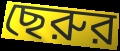
ছেরুর